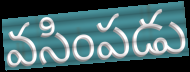
వసింపడు